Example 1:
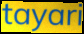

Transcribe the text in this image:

tayari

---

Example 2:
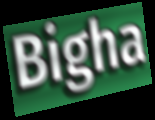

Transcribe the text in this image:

Bigha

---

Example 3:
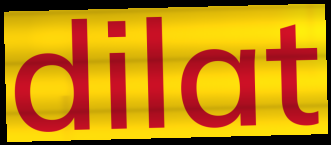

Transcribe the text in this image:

dilat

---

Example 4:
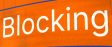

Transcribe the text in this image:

Blocking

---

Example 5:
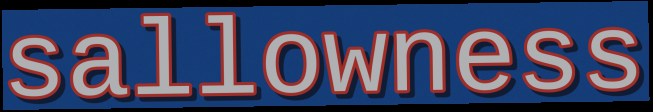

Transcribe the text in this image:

sallowness